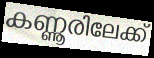
കണ്ണൂരിലേക്ക്